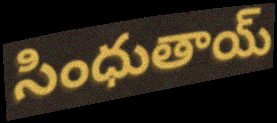
సింధుతాయ్